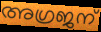
അഗ്രജന്